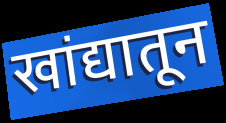
खांद्यातून